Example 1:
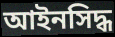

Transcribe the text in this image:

আইনসিদ্ধ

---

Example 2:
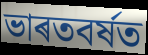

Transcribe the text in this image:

ভাৰতবৰ্ষত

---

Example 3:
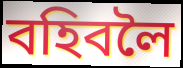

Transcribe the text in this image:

বহিবলৈ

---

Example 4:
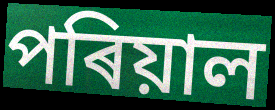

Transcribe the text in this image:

পৰিয়াল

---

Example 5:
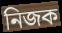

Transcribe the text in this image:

নিজক